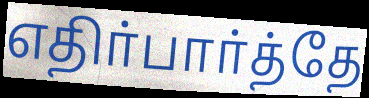
எதிர்பார்த்தே